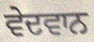
ਵੇਦਵਾਨ